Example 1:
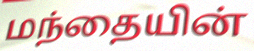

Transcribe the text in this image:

மந்தையின்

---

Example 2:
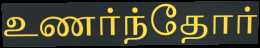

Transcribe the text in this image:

உணர்ந்தோர்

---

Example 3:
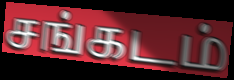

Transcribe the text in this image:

சங்கடம்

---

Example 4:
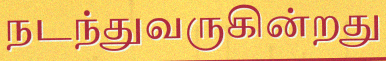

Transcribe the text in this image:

நடந்துவருகின்றது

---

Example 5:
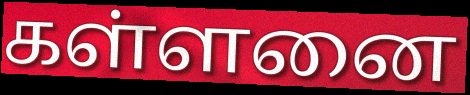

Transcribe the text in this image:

கள்ளனை